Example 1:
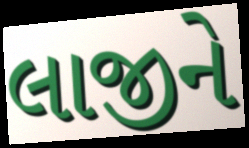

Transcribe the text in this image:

લાજીને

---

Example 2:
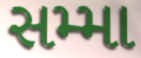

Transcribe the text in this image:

સમ્મા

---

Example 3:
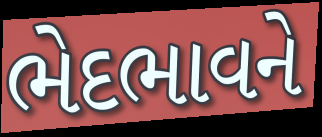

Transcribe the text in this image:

ભેદભાવને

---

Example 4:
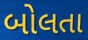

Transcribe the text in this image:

બોલતા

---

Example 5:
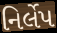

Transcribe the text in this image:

નિર્લેપ